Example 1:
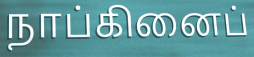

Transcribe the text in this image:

நாப்கினைப்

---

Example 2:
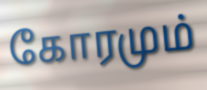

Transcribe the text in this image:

கோரமும்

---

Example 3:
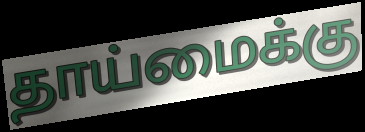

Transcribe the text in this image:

தாய்மைக்கு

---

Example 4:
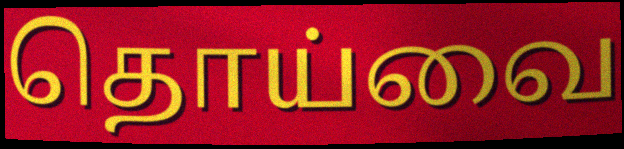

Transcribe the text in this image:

தொய்வை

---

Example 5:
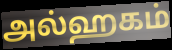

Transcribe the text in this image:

அல்ஹகம்